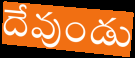
దేవుండు